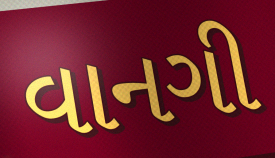
વાનગી